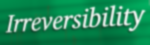
Irreversibility